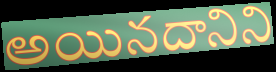
అయినదానిని